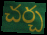
చర్చ